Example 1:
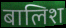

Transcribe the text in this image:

बालिश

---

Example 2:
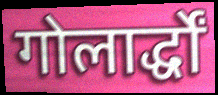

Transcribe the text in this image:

गोलार्द्धों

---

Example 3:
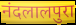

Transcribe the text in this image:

नंदलालपुरा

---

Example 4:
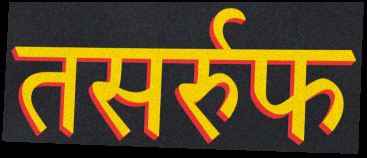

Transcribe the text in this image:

तसर्रुफ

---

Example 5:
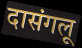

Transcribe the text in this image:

दासंगलू